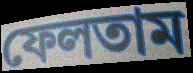
ফেলতাম